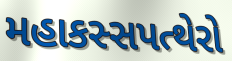
મહાકસ્સપત્થેરો